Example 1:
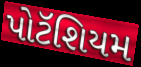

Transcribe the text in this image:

પોટૅશિયમ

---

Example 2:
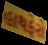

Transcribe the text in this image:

હાથફેરો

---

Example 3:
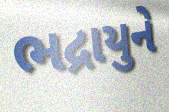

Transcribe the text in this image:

ભદ્રાયુને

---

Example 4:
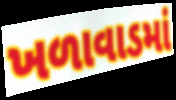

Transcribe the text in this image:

ખળાવાડમાં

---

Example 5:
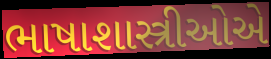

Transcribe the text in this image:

ભાષાશાસ્ત્રીઓએ